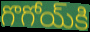
గొగోయ్‌కి